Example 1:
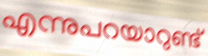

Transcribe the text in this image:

എന്നുപറയാറുണ്ട്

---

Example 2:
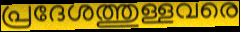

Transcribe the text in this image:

പ്രദേശത്തുള്ളവരെ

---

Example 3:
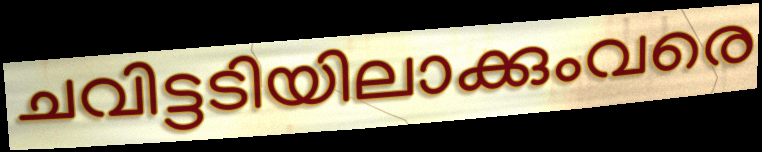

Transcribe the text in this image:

ചവിട്ടടിയിലാക്കുംവരെ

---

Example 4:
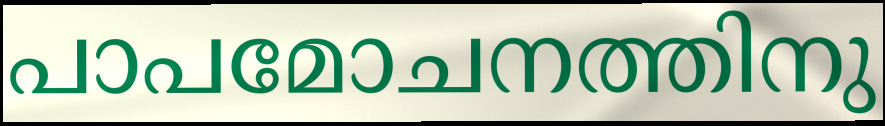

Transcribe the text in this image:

പാപമോചനത്തിനു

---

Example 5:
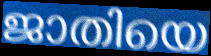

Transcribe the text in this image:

ജാതിയെ